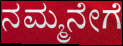
ನಮ್ಮನೇಗೆ